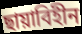
ছায়াবিহীন